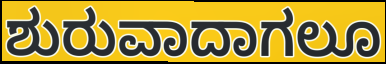
ಶುರುವಾದಾಗಲೂ